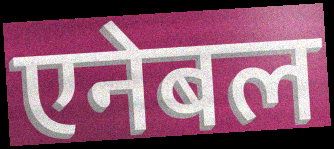
एनेबल